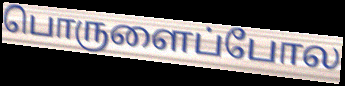
பொருளைப்போல